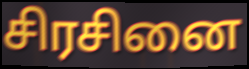
சிரசினை